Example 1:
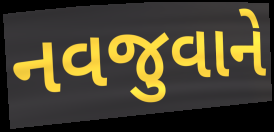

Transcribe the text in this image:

નવજુવાને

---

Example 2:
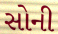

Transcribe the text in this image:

સોની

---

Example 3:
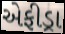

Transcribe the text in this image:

એફીડ્રા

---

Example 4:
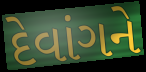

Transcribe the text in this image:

દેવાંગને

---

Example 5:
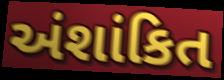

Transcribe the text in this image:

અંશાંકિત